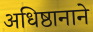
अधिष्ठानाने